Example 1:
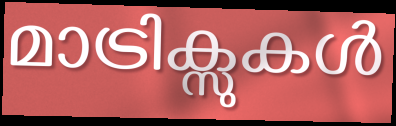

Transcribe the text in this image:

മാട്രിക്സുകൾ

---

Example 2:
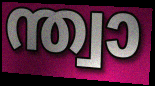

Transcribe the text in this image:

ന്ത്വാ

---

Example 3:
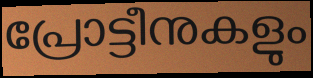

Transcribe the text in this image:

പ്രോട്ടീനുകളും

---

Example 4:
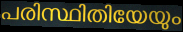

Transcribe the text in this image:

പരിസ്ഥിതിയേയും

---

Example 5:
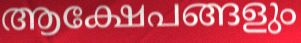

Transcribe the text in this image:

ആക്ഷേപങ്ങളും